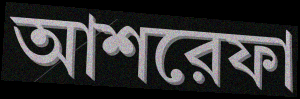
আশরেফা